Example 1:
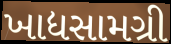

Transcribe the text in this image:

ખાદ્યસામગ્રી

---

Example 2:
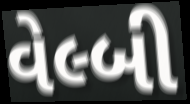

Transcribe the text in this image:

વેલ્બી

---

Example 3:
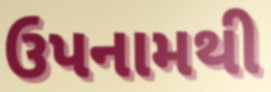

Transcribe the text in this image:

ઉપનામથી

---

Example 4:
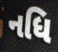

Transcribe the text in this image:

નધિ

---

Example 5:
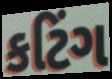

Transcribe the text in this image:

કટિંગ